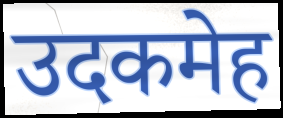
उदकमेह